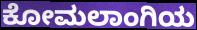
ಕೋಮಲಾಂಗಿಯ